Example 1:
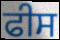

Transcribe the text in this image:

ਫੀਸ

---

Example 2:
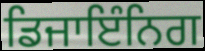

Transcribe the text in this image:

ਡਿਜਾਇੰਨਿਗ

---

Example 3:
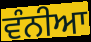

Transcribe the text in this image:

ਵੰਨੀਆ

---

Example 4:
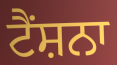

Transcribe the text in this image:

ਟੈਂਸ਼ਨਾ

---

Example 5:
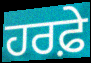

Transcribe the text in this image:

ਹਰਫ਼ੇ